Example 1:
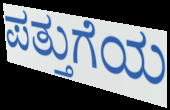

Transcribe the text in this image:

ಪತ್ತುಗೆಯ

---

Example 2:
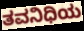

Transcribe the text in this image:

ತವನಿಧಿಯ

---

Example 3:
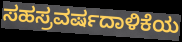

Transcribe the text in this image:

ಸಹಸ್ರವರ್ಷದಾಳಿಕೆಯ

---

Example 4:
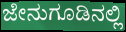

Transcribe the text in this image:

ಜೇನುಗೂಡಿನಲ್ಲಿ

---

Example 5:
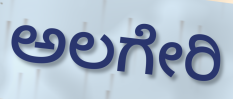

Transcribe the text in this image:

ಅಲಗೇರಿ